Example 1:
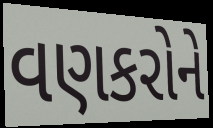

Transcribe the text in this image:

વણકરોને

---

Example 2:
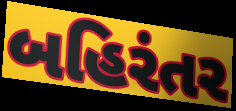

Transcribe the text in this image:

બહિરંતર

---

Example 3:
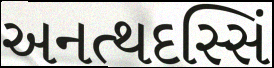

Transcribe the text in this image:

અનત્થદસ્સિં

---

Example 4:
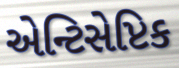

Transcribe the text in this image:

એન્ટિસેપ્ટિક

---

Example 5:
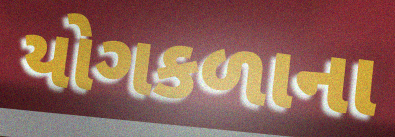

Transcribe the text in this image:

યોગકળાના